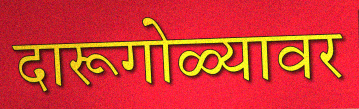
दारूगोळ्यावर